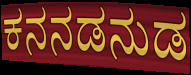
ಕನನಡನುಡ